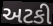
અટકી